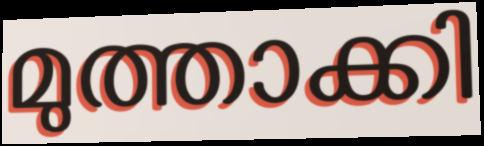
മുത്താക്കി